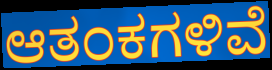
ಆತಂಕಗಳಿವೆ